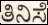
ತಿನಿಸೆ